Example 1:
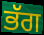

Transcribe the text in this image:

ਭੱਗ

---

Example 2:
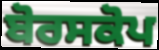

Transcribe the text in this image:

ਬੋਰਸਕੋਪ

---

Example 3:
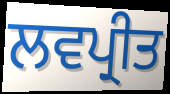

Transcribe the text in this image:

ਲਵਪ੍ਰੀਤ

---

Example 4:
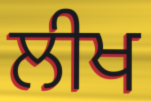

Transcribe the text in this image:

ਲੀਖ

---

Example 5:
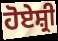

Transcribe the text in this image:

ਹੋਏਸ਼੍ਰੀ